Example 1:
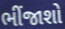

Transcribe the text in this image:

ભીંજાશો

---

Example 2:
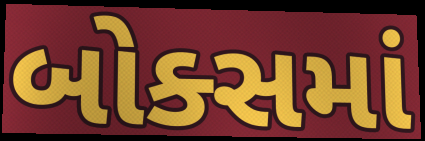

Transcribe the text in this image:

બોક્સમાં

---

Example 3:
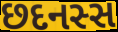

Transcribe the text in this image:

છદનસ્સ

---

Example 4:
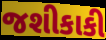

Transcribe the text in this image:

જશીકાકી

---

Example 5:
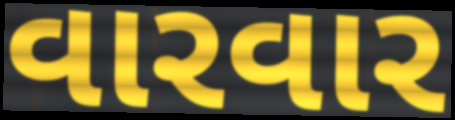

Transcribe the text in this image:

વારવાર